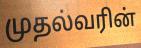
முதல்வரின்